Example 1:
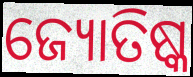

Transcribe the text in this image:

ଜ୍ୟୋତିଷ୍କ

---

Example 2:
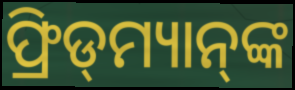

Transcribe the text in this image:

ଫ୍ରିଡ୍‌ମ୍ୟାନ୍‌ଙ୍କ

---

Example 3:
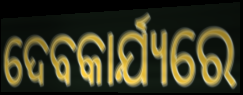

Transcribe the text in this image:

ଦେବକାର୍ଯ୍ୟରେ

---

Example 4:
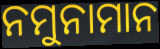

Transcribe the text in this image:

ନମୁନାମାନ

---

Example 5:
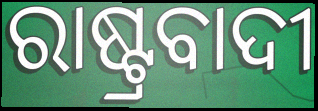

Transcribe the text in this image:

ରାଷ୍ଟ୍ରବାଦୀ